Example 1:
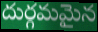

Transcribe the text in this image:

దుర్గమమైన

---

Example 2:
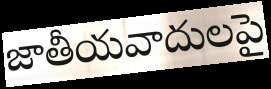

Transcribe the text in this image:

జాతీయవాదులపై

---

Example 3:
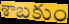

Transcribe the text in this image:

శాబకుం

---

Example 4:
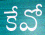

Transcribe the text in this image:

కేవో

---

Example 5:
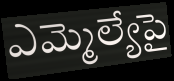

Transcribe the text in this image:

ఎమ్మెల్యేపై